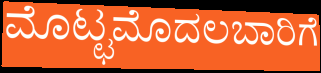
ಮೊಟ್ಟಮೊದಲಬಾರಿಗೆ